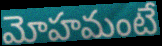
మోహమంటే